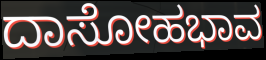
ದಾಸೋಹಭಾವ